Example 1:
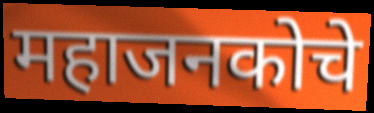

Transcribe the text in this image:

महाजनकोचे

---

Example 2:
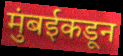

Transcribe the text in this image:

मुंबईकडून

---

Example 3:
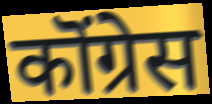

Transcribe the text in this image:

कॊंग्रेस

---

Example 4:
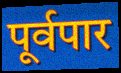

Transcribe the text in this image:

पूर्वपार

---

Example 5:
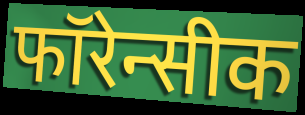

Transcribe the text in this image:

फॉरेन्सीक